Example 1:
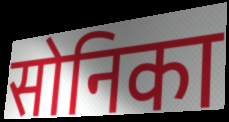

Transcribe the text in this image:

सोनिका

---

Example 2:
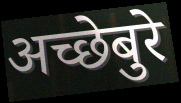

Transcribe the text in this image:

अच्छेबुरे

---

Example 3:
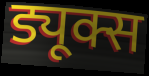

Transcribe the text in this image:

ड्यूक्स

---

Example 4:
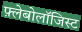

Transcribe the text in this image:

फ़्लेबोलॉजिस्ट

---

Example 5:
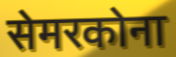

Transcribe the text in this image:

सेमरकोना